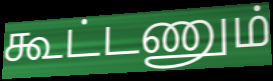
கூட்டணும்